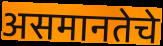
असमानतेचे